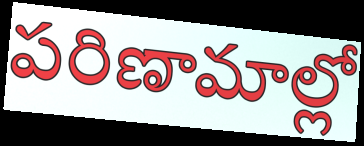
పరిణామాల్లో